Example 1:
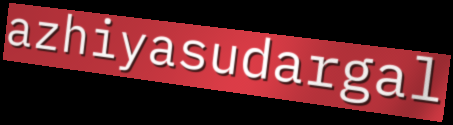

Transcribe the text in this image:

azhiyasudargal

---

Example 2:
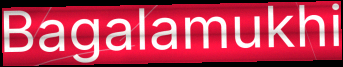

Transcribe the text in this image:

Bagalamukhi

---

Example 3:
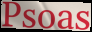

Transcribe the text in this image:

Psoas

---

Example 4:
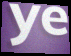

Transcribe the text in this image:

ye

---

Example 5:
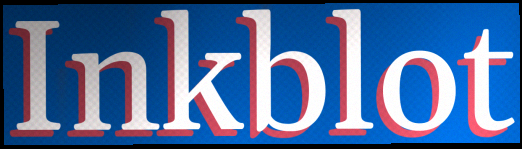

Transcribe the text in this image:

Inkblot